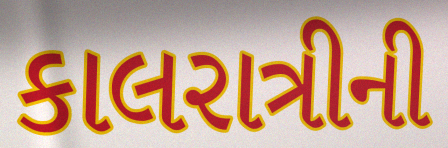
કાલરાત્રીની